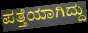
ಪತ್ತೆಯಾಗಿದ್ದು